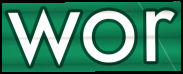
wor